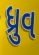
ધ્રુવ